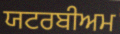
ਯਟਰਬੀਅਮ